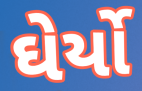
ઘેર્યો